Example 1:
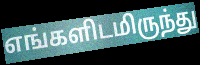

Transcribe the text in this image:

எங்களிடமிருந்து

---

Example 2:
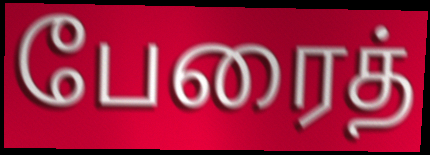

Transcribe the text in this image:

பேரைத்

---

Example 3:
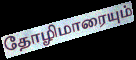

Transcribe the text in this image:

தோழிமாரையும்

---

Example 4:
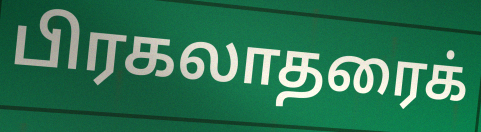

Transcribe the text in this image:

பிரகலாதரைக்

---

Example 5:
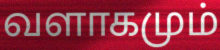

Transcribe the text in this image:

வளாகமும்